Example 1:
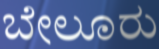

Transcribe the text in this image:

ಬೇಲೂರು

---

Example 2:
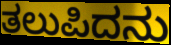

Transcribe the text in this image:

ತಲುಪಿದನು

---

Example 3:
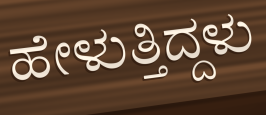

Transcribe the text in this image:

ಹೇಳುತ್ತಿದ್ದಳು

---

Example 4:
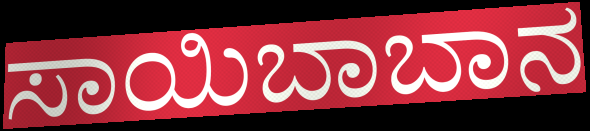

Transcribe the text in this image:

ಸಾಯಿಬಾಬಾನ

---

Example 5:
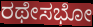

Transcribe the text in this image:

ರಥೇಸಭೋ